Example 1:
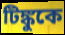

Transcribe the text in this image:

টিঙ্কুকে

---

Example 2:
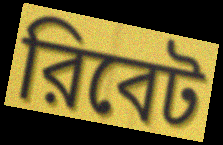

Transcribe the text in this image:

রিবেট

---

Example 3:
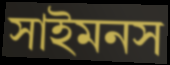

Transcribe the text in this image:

সাইমনস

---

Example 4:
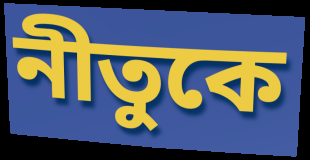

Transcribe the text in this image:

নীতুকে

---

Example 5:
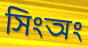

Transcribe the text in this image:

সিংঅং